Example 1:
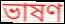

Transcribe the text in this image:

ভাষণ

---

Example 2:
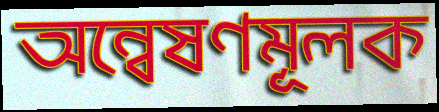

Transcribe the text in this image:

অন্বেষণমূলক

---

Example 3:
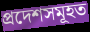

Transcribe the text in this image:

প্ৰদেশসমূহত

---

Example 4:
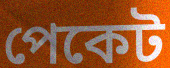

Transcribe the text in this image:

পেকেট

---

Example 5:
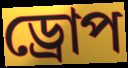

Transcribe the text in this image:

ড্ৰোপ